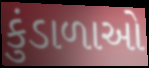
કુંડાળાઓ